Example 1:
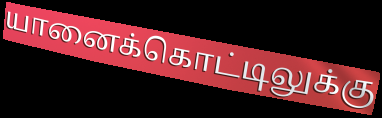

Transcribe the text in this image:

யானைக்கொட்டிலுக்கு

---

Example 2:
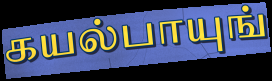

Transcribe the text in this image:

கயல்பாயுங்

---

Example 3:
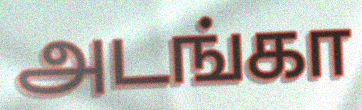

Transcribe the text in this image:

அடங்கா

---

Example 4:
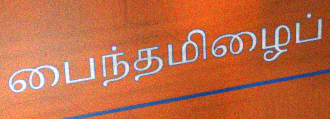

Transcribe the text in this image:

பைந்தமிழைப்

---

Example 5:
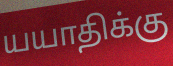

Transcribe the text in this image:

யயாதிக்கு